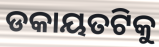
ଡକାୟତଟିକୁ